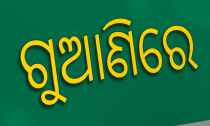
ଗୁଆଣିରେ